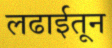
लढाईतून